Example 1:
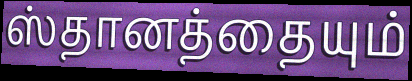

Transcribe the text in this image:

ஸ்தானத்தையும்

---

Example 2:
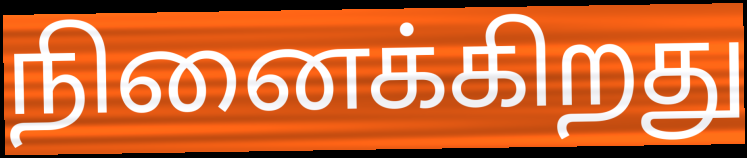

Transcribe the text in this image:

நினைக்கிறது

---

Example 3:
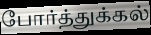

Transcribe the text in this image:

போர்த்துக்கல்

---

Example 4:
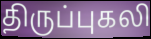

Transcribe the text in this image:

திருப்புகலி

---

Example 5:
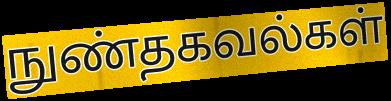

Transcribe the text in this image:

நுண்தகவல்கள்